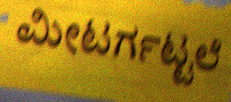
ಮೀಟರ್ಗಟ್ಟಲೆ